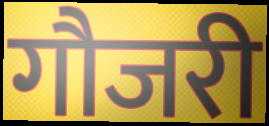
गौजरी